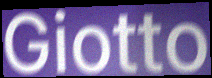
Giotto